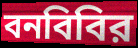
বনবিবির